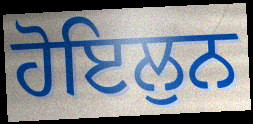
ਹੋਇਲੁਨ